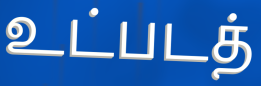
உட்படத்